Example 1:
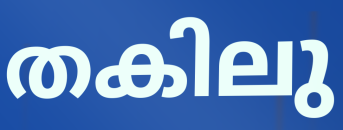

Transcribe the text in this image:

തകിലു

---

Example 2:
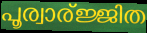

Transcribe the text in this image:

പൂര്വാര്ജ്ജിത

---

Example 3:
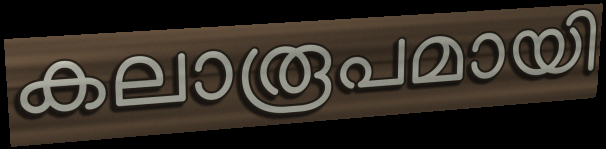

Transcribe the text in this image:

കലാരൂപമായി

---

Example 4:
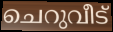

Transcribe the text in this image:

ചെറുവീട്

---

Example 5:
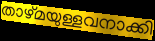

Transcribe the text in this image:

താഴ്മയുള്ളവനാക്കി